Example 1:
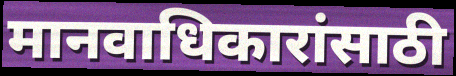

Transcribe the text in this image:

मानवाधिकारांसाठी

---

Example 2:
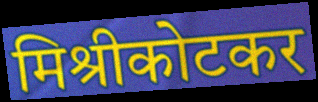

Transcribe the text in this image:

मिश्रीकोटकर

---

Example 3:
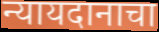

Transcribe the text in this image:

न्यायदानाचा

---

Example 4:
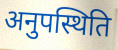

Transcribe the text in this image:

अनुपस्थिति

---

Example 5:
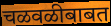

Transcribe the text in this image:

चळवळीबाबत